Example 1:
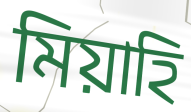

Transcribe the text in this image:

মিয়াহি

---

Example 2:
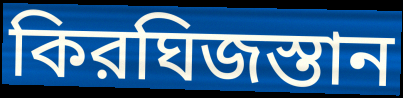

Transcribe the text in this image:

কিরঘিজস্তান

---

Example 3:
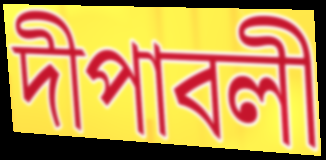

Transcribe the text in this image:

দীপাবলী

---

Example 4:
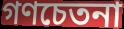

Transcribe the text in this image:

গণচেতনা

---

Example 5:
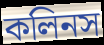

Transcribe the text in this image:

কলিনস